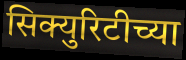
सिक्युरिटीच्या